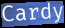
Cardy